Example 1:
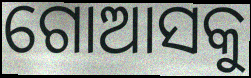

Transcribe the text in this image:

ଗୋଆସକୁ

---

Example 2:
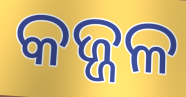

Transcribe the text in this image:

କଜ୍ଜଳ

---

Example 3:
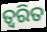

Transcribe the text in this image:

ତ୍ଵରିତ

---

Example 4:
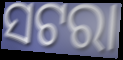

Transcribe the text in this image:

ସଟରା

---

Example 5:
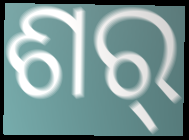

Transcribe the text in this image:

ଶର୍